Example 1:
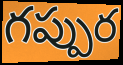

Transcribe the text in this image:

గప్పుర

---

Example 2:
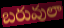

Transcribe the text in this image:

బరువులా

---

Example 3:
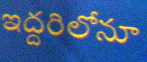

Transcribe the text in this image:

ఇద్దరిలోనూ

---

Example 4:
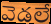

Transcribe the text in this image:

వెడలే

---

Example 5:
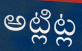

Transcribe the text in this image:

అట్లిట్ల